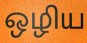
ஒழிய